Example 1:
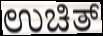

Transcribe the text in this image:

ಉಚಿತ್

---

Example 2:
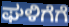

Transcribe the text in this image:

ಘಳಿಗೆಗೆ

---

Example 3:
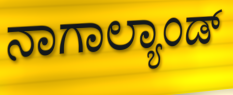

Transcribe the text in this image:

ನಾಗಾಲ್ಯಾಂಡ್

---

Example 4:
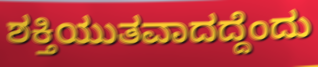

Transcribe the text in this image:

ಶಕ್ತಿಯುತವಾದದ್ದೆಂದು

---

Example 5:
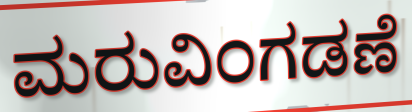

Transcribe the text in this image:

ಮರುವಿಂಗಡಣೆ